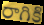
రాగికి